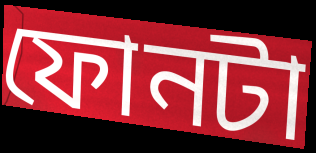
ফোনটা